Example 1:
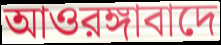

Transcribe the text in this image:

আওরঙ্গাবাদে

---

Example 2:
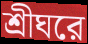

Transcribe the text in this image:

শ্রীঘরে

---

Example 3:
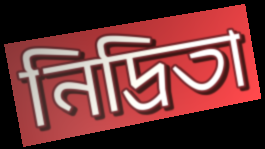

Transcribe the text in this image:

নিদ্রিতা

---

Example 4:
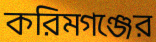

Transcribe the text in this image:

করিমগঞ্জের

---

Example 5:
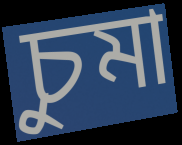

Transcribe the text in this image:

চুমা